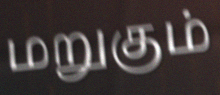
மறுகும்